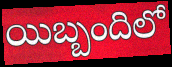
యిబ్బందిలో